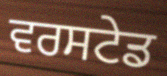
ਵਰਸਟੇਡ